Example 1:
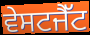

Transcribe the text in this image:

ਵੇਸਟਜੈੱਟ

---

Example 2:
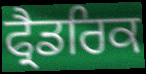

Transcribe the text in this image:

ਫ੍ਰੈਡਰਿਕ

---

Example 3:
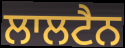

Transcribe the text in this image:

ਲਾਲਟੈਨ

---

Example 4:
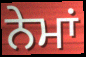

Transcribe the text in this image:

ਨੇਮਾਂ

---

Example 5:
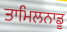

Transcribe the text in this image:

ਤਾਮਿਲਨਾਡੂ